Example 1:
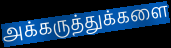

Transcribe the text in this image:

அக்கருத்துக்களை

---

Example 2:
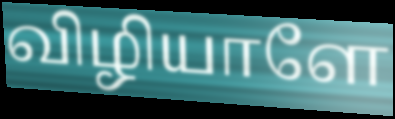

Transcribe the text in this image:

விழியாளே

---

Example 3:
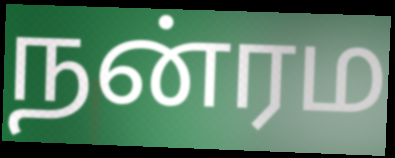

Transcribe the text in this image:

நன்ரம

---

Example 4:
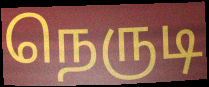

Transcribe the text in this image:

நெருடி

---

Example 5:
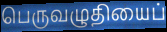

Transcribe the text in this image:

பெருவழுதியைப்